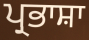
ਪ੍ਰਭਾਸ਼ਾ